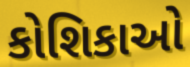
કોશિકાઓ